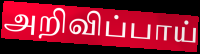
அறிவிப்பாய்